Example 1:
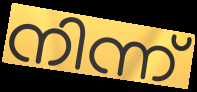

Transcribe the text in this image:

നിന്ന്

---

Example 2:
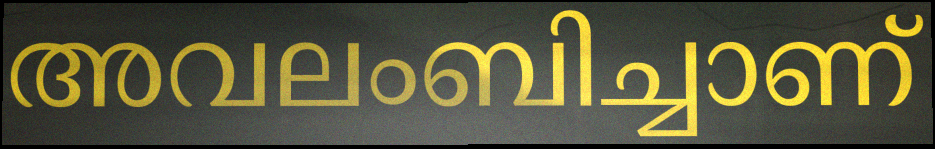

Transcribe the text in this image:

അവലംബിച്ചാണ്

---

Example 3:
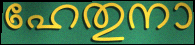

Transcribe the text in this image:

ഹേതുനാ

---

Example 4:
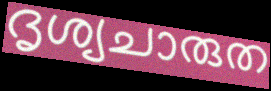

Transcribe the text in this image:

ദൃശ്യചാരുത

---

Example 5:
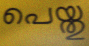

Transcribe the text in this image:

പെയ്തു